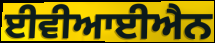
ਈਵੀਆਈਐਨ